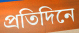
প্ৰতিদিনে